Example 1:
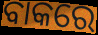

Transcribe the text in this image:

ବାକରେ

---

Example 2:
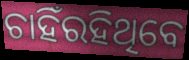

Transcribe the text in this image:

ଚାହିଁରହିଥିବେ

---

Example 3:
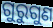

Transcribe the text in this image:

ଗୁରୁଗୁଣ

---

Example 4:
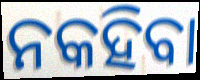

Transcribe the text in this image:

ନକହିବା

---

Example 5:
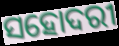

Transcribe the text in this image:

ସହୋଦରୀ